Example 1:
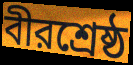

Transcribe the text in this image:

বীরশ্রেষ্ঠ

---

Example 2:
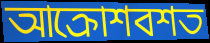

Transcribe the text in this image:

আক্রোশবশত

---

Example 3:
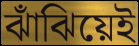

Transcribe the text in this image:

ঝাঁঝিয়েই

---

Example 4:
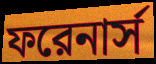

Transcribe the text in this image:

ফরেনার্স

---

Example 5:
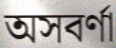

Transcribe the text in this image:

অসবর্ণা